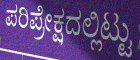
ಪರಿಪ್ರೇಕ್ಷದಲ್ಲಿಟ್ಟು